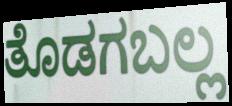
ತೊಡಗಬಲ್ಲ